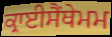
ਕ੍ਰਾਈਸੈਂਥੇਮਮ